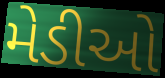
મેડીઓ